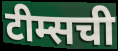
टीम्सची